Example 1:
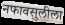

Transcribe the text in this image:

नफावसुलीला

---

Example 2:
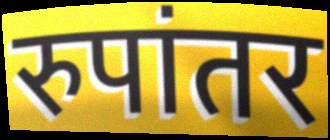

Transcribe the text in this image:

रुपांतर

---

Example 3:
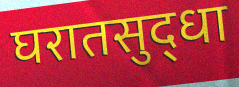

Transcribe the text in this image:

घरातसुद्धा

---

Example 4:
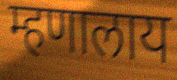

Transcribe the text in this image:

म्हणालाय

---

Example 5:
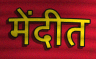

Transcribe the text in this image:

मेंदीत